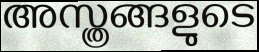
അസ്ത്രങ്ങളുടെ